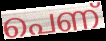
പെണ്